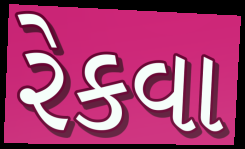
રેકવા